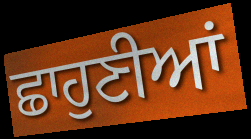
ਛਾਹੁਣੀਆਂ